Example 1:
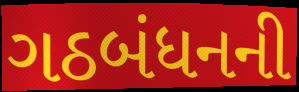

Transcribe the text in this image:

ગઠબંધનની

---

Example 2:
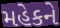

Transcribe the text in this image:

મહેકને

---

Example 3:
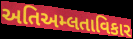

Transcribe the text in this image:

અતિઅમ્લતાવિકાર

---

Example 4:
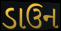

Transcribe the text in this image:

ડાઉન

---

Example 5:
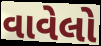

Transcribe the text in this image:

વાવેલો